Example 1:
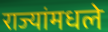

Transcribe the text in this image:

राज्यांमधले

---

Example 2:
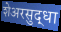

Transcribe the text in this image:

शेअरसुद्धा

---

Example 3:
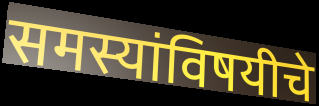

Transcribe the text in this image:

समस्यांविषयीचे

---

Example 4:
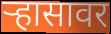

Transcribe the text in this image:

ऱ्हासावर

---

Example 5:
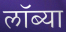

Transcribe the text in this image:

लॉब्या